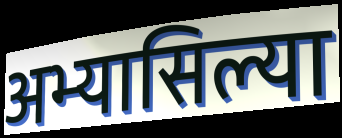
अभ्यासिल्या